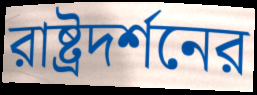
রাষ্ট্রদর্শনের